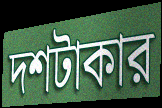
দশটাকার